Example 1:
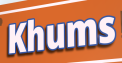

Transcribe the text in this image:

Khums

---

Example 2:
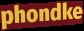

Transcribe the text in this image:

phondke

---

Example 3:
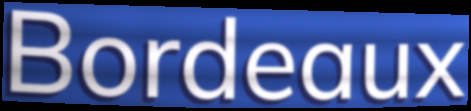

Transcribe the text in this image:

Bordeaux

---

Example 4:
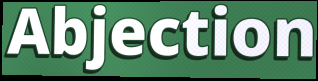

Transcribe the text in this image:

Abjection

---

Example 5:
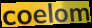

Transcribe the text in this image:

coelom